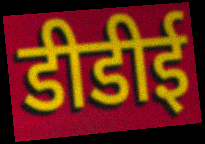
डीडीई